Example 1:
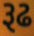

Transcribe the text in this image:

રૂઢ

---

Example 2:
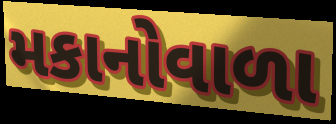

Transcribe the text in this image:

મકાનોવાળા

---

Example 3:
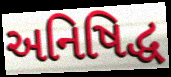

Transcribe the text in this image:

અનિષિદ્ધ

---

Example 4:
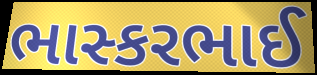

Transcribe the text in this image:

ભાસ્કરભાઈ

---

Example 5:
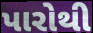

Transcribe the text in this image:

પારોથી